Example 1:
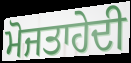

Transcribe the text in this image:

ਮੋਜਤਾਹੇਦੀ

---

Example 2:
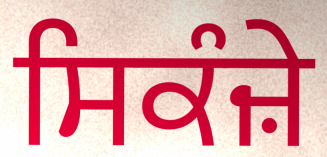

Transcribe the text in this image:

ਸਿਕੰਜ਼ੇ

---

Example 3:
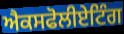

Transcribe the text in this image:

ਐਕਸਫੋਲੀਏਟਿੰਗ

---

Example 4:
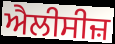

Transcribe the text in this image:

ਐਲੀਸੀਜ਼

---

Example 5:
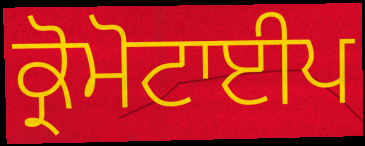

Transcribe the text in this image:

ਕ੍ਰੋਮੋਟਾਈਪ